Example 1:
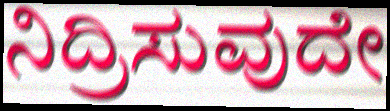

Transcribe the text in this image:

ನಿದ್ರಿಸುವುದೇ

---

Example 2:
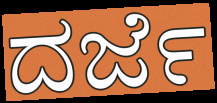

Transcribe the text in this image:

ದರ್ಜೆ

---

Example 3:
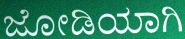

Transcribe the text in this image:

ಜೋಡಿಯಾಗಿ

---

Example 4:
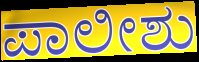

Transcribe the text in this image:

ಪಾಲೀಶು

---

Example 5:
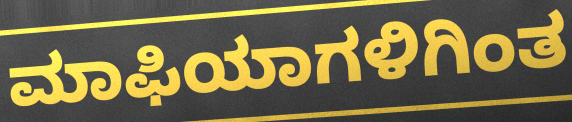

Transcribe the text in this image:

ಮಾಫಿಯಾಗಳಿಗಿಂತ